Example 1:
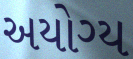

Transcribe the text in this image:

અયોગ્ય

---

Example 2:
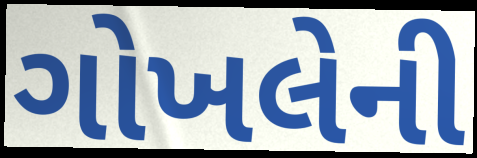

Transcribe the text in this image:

ગોખલેની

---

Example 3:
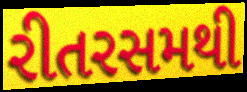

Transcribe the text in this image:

રીતરસમથી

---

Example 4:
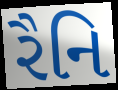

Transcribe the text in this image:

રૈનિ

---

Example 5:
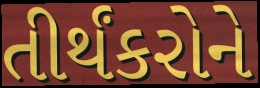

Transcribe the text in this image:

તીર્થંકરોને